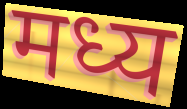
मध्य